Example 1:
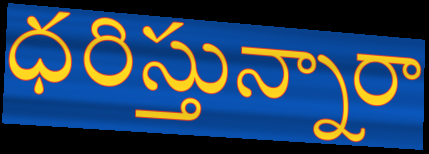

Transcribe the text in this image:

ధరిస్తున్నారా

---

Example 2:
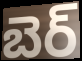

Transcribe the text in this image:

బెర్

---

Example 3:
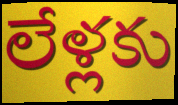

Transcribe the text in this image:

లేళ్లకు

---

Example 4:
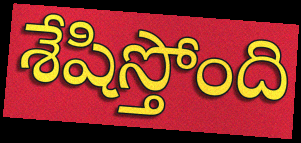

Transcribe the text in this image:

శేషిస్తోంది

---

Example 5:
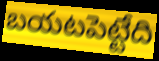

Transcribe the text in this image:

బయటపెట్టేది